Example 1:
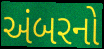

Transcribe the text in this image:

અંબરનો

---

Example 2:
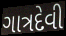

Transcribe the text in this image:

ગાત્રદેવી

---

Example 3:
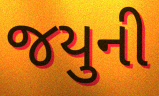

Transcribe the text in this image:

જયુની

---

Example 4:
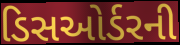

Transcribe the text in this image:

ડિસઓર્ડરની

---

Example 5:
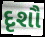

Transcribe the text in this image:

દૃશૌ